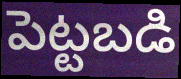
పెట్టబడి